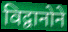
विद्वानोने